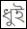
ধুই